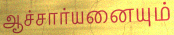
ஆச்சார்யனையும்